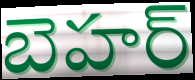
బెహర్